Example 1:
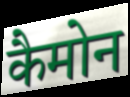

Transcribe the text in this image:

कैमोन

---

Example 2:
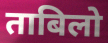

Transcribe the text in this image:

ताबिलो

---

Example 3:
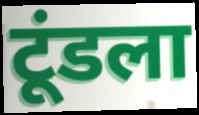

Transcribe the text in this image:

टूंडला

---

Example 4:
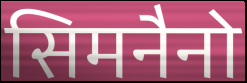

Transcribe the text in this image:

सिमनैनो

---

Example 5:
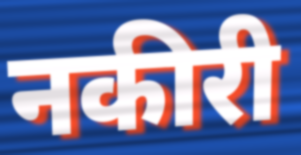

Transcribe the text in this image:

नकीरी